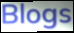
Blogs